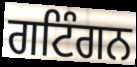
ਗਟਿੰਗਨ